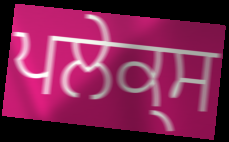
ਪਲੇਕ੍ਸ